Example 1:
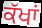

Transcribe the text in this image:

ਕੱਖਾਂ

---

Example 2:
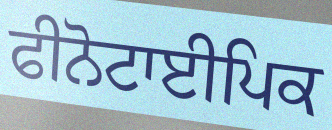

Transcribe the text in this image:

ਫੀਨੋਟਾਈਪਿਕ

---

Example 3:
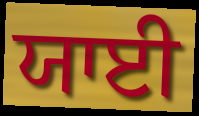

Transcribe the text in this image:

ਯਾਈ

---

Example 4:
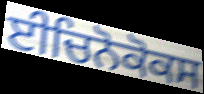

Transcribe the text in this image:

ਈਚਿਨੋਕੋਕਸ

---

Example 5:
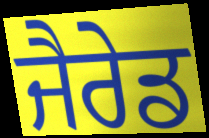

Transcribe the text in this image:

ਜੈਰੇਡ